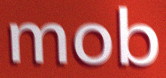
mob